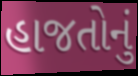
હાજતોનું